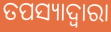
ତପସ୍ୟାଦ୍ୱାରା